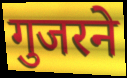
गुजरने